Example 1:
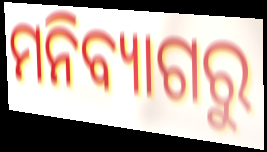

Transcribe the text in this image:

ମନିବ୍ୟାଗରୁ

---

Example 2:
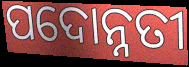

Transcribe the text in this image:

ପଦୋନ୍ନତୀ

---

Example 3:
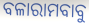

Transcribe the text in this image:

ବଳାରାମବାବୁ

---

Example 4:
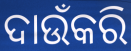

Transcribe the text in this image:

ଦାଉଁକରି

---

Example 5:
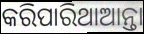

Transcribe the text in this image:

କରିପାରିଥାଆନ୍ତା